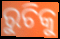
ରୁଚିକୁ